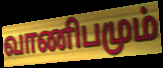
வாணிபமும்